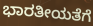
ಭಾರತೀಯತೆಗೆ